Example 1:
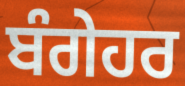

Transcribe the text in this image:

ਬੰਗੇਹਰ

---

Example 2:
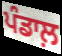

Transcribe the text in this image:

ਪੰਡਾਲ਼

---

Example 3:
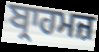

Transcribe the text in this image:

ਬ੍ਰਾਹਮਜ਼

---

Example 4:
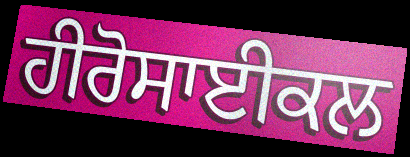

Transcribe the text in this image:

ਹੀਰੋਸਾਈਕਲ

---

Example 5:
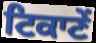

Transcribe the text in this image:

ਟਿਕਾਣੇਂ